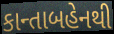
કાન્તાબહેનથી